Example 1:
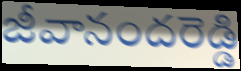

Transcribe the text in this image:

జీవానందరెడ్డి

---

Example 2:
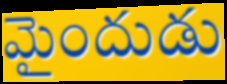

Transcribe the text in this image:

మైందుడు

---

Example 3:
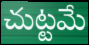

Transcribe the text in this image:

చుట్టమే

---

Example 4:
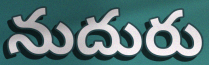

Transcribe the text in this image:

నుదురు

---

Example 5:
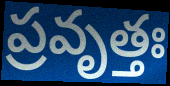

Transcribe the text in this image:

ప్రవృత్తః